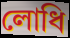
লোধি